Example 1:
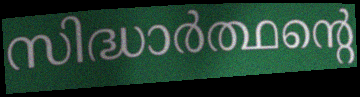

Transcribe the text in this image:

സിദ്ധാർത്ഥന്റെ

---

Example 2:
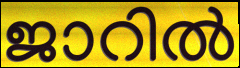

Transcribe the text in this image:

ജാറിൽ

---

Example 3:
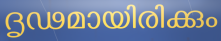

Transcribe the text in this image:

ദൃഢമായിരിക്കും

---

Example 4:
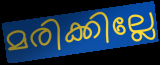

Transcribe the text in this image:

മരിക്കില്ലേ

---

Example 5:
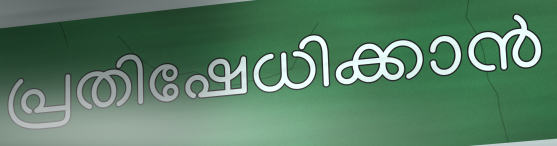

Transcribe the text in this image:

പ്രതിഷേധിക്കാൻ